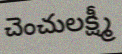
చెంచులక్ష్మీ